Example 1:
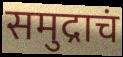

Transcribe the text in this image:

समुद्राचं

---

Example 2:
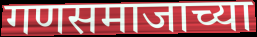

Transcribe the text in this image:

गणसमाजाच्या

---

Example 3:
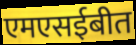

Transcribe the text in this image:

एमएसईबीत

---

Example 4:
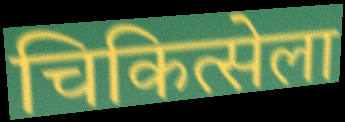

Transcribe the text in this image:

चिकित्सेला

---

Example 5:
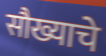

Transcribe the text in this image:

सौख्याचे